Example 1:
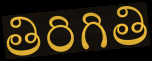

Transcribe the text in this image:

తిరిగితి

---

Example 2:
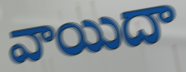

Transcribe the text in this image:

వాయిదా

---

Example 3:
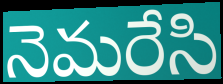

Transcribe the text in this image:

నెమరేసి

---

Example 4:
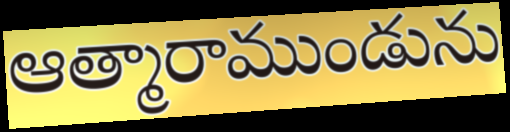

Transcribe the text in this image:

ఆత్మారాముండును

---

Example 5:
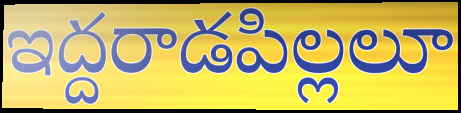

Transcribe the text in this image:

ఇద్దరాడపిల్లలూ